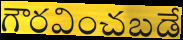
గౌరవించబడే